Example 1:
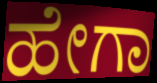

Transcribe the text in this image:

ಹೇಗಾ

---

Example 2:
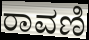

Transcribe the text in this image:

ರಾವಣಿ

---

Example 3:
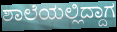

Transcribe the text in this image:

ಶಾಲೆಯಲ್ಲಿದ್ದಾಗ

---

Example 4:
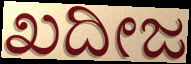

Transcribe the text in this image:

ಖದೀಜ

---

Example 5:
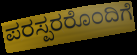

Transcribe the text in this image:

ಪರಸ್ಪರರೊಂದಿಗೆ